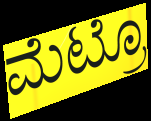
ಮೆಟ್ರೊ